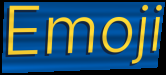
Emoji